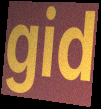
gid